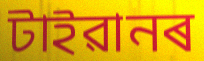
টাইৱানৰ